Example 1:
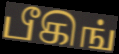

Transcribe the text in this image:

பீகிங்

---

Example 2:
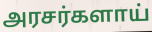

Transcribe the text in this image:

அரசர்களாய்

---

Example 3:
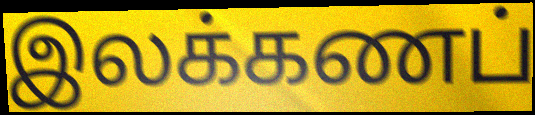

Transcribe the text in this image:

இலக்கணப்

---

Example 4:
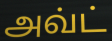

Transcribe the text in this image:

அவ்ட்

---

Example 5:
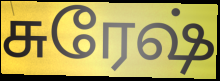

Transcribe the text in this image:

சுரேஷ்